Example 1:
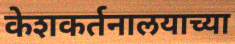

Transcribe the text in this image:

केशकर्तनालयाच्या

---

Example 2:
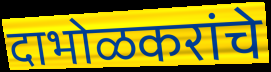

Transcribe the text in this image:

दाभोळकरांचे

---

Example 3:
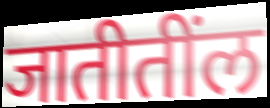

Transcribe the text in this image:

जातीतींल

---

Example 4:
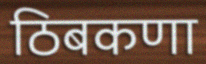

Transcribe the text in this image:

ठिबकणा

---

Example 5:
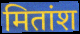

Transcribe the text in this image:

मितांश